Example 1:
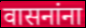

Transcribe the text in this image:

वासनांना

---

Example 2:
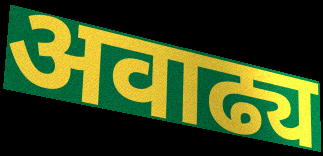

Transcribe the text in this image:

अवाढ्य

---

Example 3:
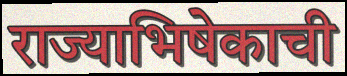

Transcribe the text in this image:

राज्याभिषेकाची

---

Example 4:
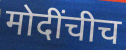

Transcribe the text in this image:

मोदींचीच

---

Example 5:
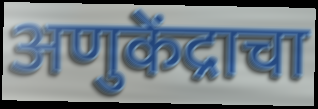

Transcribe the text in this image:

अणुकेंद्राचा